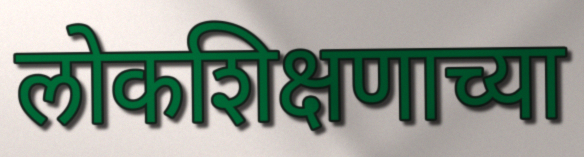
लोकशिक्षणाच्या